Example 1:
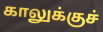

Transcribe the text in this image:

காலுக்குச்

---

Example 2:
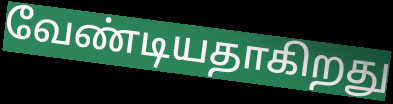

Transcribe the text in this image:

வேண்டியதாகிறது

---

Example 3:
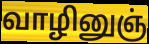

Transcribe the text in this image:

வாழினுஞ்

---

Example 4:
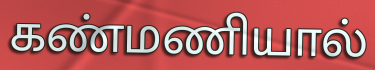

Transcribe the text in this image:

கண்மணியால்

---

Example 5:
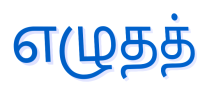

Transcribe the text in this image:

எழுதத்